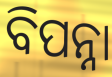
ବିପନ୍ନା